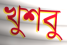
খুশবু